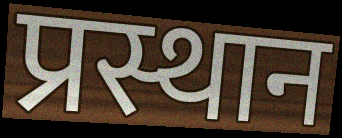
प्रस्थान